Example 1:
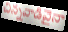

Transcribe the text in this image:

చిన్నవాడివైనా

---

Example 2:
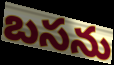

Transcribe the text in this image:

బసను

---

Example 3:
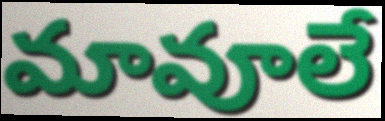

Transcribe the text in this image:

మావూలే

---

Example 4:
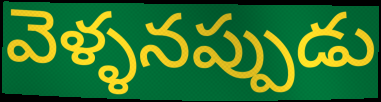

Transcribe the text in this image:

వెళ్ళనప్పుడు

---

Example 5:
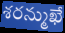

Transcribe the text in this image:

శరన్ముఖే